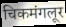
चिकमंगलूर